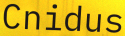
Cnidus